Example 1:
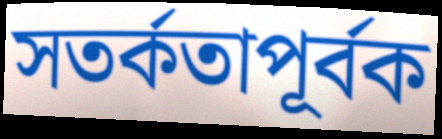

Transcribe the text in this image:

সতর্কতাপূর্বক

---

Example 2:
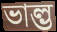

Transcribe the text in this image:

ভাল্ভ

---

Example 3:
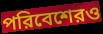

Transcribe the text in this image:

পরিবেশেরও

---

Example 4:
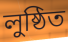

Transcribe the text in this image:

লুষ্ঠিত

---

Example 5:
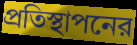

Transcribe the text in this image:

প্রতিস্থাপনের